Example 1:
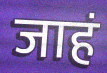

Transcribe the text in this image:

जाहं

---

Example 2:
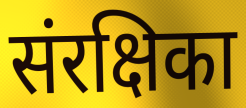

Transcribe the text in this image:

संरक्षिका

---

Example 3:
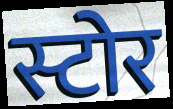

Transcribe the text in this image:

स्‍टोर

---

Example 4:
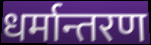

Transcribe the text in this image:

धर्मान्तरण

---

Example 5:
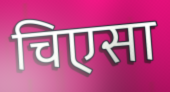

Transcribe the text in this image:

चिएसा